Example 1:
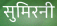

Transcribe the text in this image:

सुमिरनी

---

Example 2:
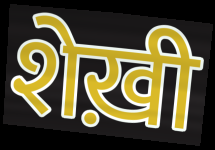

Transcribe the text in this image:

शेख़ी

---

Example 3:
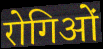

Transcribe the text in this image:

रोगिओं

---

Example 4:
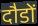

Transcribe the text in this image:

दौडों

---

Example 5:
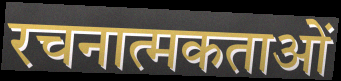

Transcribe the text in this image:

रचनात्मकताओं